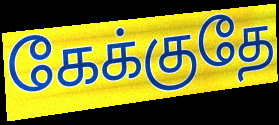
கேக்குதே